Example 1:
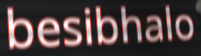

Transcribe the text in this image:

besibhalo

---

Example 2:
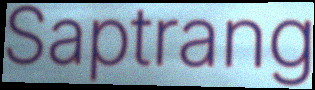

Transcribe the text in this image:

Saptrang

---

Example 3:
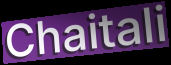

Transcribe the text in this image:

Chaitali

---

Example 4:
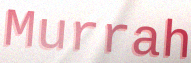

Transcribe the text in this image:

Murrah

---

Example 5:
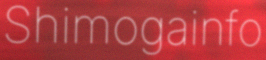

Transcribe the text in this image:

Shimogainfo